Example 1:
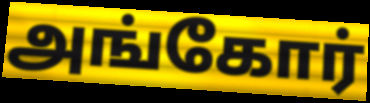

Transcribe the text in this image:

அங்கோர்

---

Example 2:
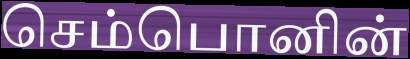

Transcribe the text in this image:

செம்பொனின்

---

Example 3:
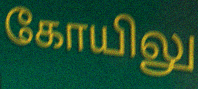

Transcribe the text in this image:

கோயிலு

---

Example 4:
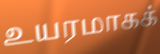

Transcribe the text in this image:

உயரமாகக்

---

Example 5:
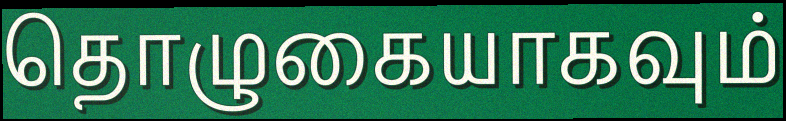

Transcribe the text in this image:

தொழுகையாகவும்